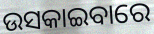
ଉସକାଇବାରେ